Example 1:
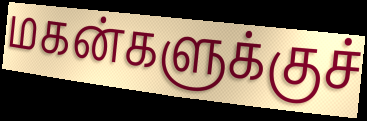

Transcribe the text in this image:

மகன்களுக்குச்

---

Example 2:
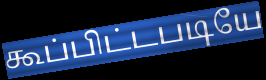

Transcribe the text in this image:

கூப்பிட்டபடியே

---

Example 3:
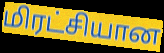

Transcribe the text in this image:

மிரட்சியான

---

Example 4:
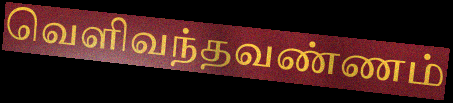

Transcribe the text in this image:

வெளிவந்தவண்ணம்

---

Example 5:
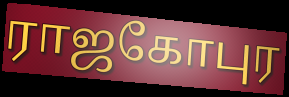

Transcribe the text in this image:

ராஜகோபுர